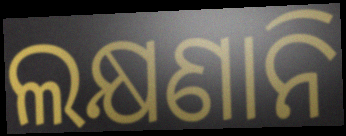
ଲକ୍ଷଣାନି